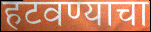
हटवण्याचा